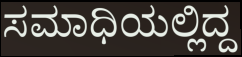
ಸಮಾಧಿಯಲ್ಲಿದ್ದ